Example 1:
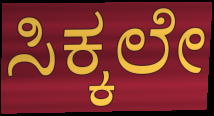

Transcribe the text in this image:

ಸಿಕ್ಕಲೇ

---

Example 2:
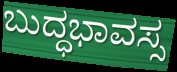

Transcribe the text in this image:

ಬುದ್ಧಭಾವಸ್ಸ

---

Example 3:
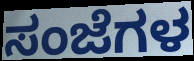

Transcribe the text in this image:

ಸಂಜೆಗಳ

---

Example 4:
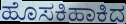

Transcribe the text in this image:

ಹೊಸಕಿಹಾಕಿದ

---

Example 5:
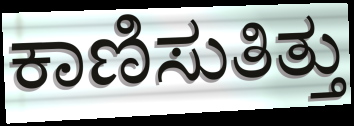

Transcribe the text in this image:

ಕಾಣಿಸುತಿತ್ತು